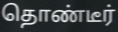
தொண்டீர்